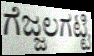
ಗೆಜ್ಜಲಗಟ್ಟಿ